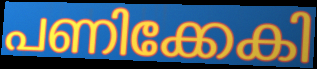
പണിക്കേകി